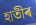
হাতীৰ